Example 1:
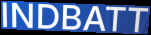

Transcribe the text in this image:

INDBATT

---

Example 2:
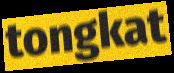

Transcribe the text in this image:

tongkat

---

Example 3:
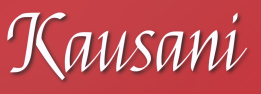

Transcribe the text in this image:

Kausani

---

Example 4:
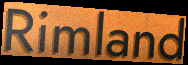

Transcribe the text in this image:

Rimland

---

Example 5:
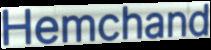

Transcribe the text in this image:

Hemchand